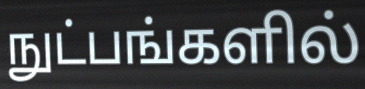
நுட்பங்களில்